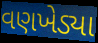
વણખેડ્યા